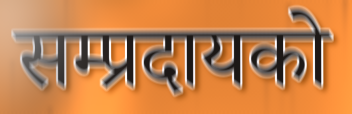
सम्प्रदायको